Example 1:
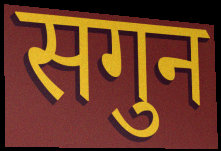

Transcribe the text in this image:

सगुन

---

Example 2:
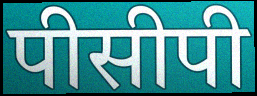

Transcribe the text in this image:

पीसीपी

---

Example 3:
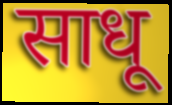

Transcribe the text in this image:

साधू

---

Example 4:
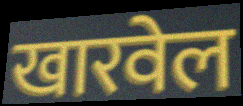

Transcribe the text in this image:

खारवेल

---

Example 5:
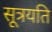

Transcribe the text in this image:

सूत्रयति